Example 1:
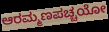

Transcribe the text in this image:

ಆರಮ್ಮಣಪಚ್ಚಯೋ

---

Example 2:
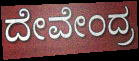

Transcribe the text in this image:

ದೇವೇಂದ್ರ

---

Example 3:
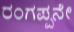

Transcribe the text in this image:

ರಂಗಪ್ಪನೇ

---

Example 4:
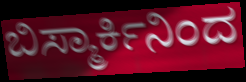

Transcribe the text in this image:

ಬಿಸ್ಮಾರ್ಕಿನಿಂದ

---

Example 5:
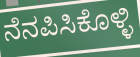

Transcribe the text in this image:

ನೆನಪಿಸಿಕೊಳ್ಳಿ